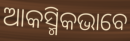
ଆକସ୍ମିକଭାବେ